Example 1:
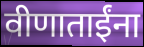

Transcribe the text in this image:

वीणाताईंना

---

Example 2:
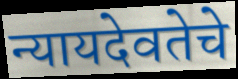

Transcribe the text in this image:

न्यायदेवतेचे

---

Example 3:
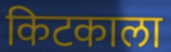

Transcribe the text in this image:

किटकाला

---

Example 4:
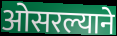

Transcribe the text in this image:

ओसरल्याने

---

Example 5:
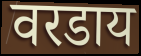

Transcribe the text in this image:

वरडाय